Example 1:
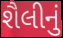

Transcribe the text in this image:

શૈલીનું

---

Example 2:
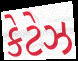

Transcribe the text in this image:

કેટેઝ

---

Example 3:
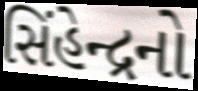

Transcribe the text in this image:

સિંહેન્દ્રનો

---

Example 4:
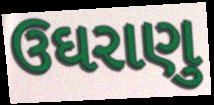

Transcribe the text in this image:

ઉઘરાણુ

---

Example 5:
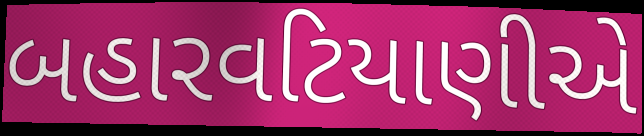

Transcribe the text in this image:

બહારવટિયાણીએ